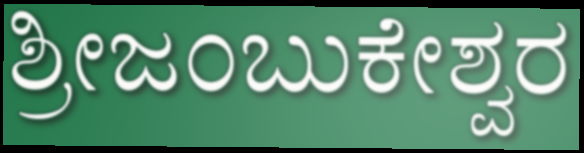
ಶ್ರೀಜಂಬುಕೇಶ್ವರ